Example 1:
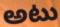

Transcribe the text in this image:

అటు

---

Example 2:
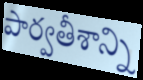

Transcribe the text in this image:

పార్వతీశాన్ని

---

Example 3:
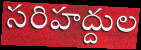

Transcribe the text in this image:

సరిహద్దుల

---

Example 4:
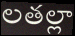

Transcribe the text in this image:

లతల్లా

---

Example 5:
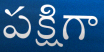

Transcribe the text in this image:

పక్షిగా